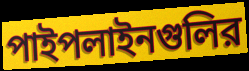
পাইপলাইনগুলির